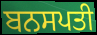
ਬਨਸਪਤੀ